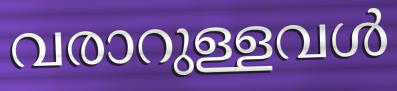
വരാറുള്ളവൾ